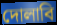
দোলাবি